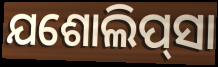
ଯଶୋଲିପ୍‌ସା